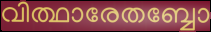
വിത്ഥാരേതബ്ബോ